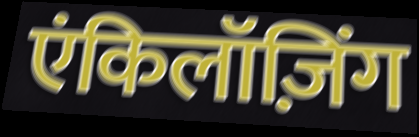
एंकिलॉज़िंग